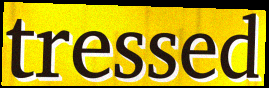
tressed